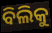
ବିଲିକୁ